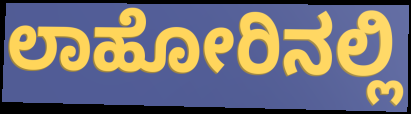
ಲಾಹೋರಿನಲ್ಲಿ